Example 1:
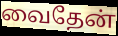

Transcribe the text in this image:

வைதேன்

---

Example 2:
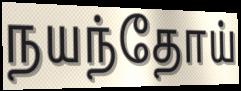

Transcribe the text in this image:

நயந்தோய்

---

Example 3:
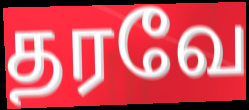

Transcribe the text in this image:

தரவே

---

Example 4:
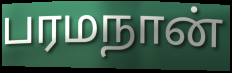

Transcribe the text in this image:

பரமநான்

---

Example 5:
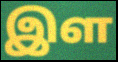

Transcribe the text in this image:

இள